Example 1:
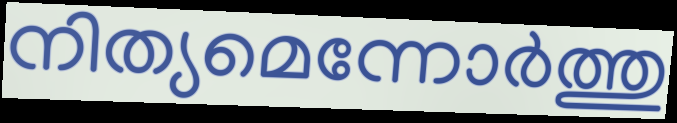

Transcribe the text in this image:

നിത്യമെന്നോർത്തു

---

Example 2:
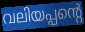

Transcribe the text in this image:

വലിയപ്പന്റെ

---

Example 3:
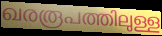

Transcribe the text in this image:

ഖരരൂപത്തിലുള്ള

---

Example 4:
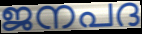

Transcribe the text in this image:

ജനപദ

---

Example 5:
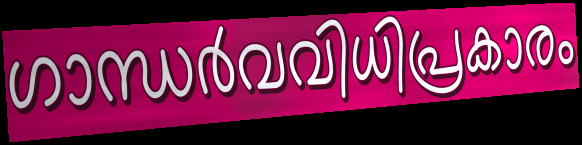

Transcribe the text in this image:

ഗാന്ധർവവിധിപ്രകാരം